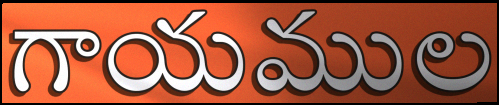
గాయముల